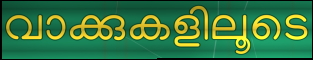
വാക്കുകളിലൂടെ